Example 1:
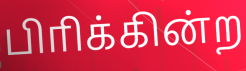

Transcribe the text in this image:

பிரிக்கின்ற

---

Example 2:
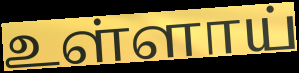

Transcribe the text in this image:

உள்ளாய்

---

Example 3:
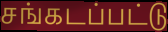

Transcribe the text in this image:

சங்கடப்பட்டு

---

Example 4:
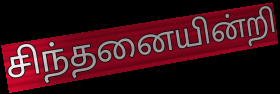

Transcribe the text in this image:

சிந்தனையின்றி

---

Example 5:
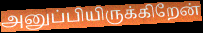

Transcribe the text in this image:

அனுப்பியிருக்கிறேன்